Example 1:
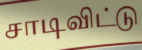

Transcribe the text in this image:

சாடிவிட்டு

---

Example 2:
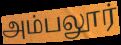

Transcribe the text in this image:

அம்பலூர்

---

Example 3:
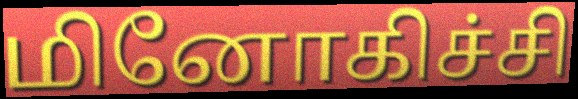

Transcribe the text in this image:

மினோகிச்சி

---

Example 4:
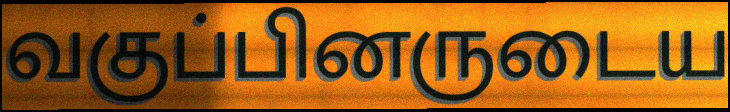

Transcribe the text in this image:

வகுப்பினருடைய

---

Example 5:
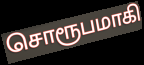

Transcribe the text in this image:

சொரூபமாகி